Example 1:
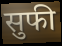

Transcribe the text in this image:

सुफी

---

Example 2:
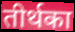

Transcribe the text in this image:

तीर्थका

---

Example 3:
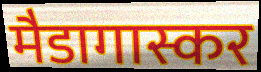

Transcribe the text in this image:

मैडागास्कर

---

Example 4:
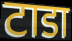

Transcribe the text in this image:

टाडा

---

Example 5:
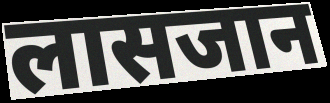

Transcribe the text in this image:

लासजान